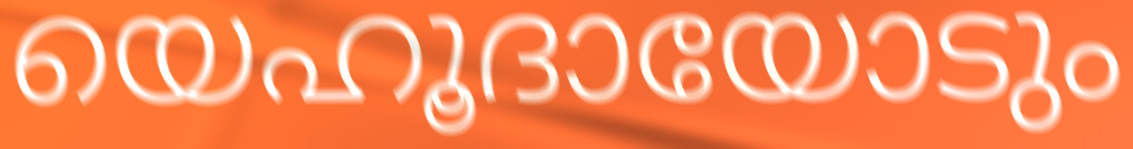
യെഹൂദായോടും